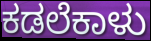
ಕಡಲೆಕಾಳು